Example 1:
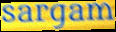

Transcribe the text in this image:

sargam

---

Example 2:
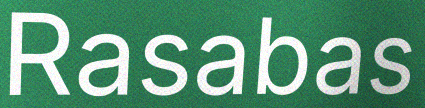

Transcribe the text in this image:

Rasabas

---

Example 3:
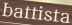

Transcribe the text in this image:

battista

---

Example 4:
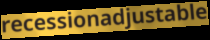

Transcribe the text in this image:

recessionadjustable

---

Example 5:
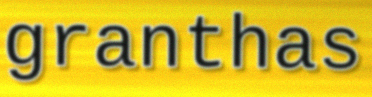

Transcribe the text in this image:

granthas